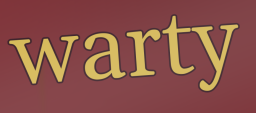
warty